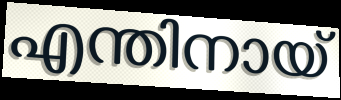
എന്തിനായ്